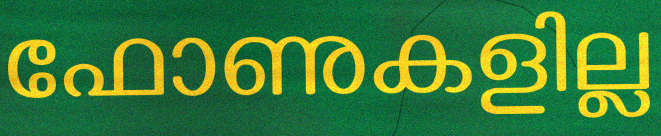
ഫോണുകളില്ല